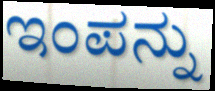
ಇಂಪನ್ನು